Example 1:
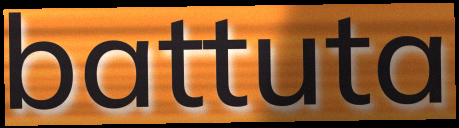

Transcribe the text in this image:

battuta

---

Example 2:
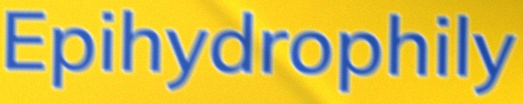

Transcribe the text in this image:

Epihydrophily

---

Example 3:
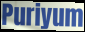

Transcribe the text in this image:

Puriyum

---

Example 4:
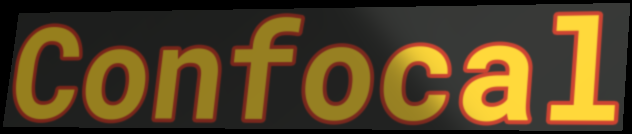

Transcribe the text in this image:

Confocal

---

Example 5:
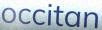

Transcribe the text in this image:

occitan